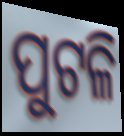
ପୁଟଳି